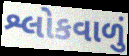
શ્લોકવાળું